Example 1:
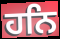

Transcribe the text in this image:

ਹਨਿ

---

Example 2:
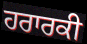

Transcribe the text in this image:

ਹਰਾਰਕੀ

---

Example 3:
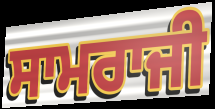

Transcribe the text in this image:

ਸਾਮਰਾਜੀ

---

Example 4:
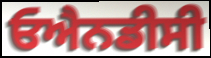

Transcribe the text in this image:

ਓਐਨਡੀਸੀ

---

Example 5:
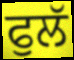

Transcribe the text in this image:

ਫੁਲੱ